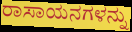
ರಾಸಾಯನಗಳನ್ನು